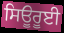
ਸਿਊਰੂਈ